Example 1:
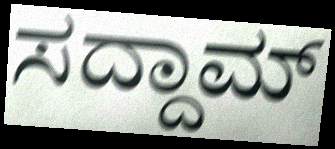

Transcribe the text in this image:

ಸದ್ದಾಮ್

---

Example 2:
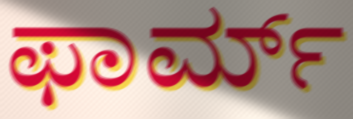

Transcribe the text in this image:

ಫಾರ್ಮ್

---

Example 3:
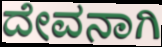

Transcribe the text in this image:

ದೇವನಾಗಿ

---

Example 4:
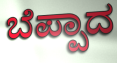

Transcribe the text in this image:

ಬೆಪ್ಪಾದ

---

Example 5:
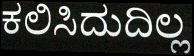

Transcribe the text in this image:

ಕಲಿಸಿದುದಿಲ್ಲ